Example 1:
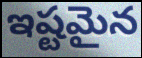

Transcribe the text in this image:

ఇష్టమైన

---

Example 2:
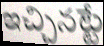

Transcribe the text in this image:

ఇచ్చినట్టే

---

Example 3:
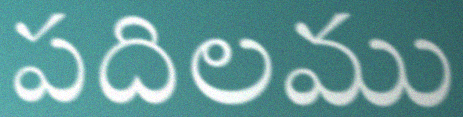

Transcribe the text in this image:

పదిలము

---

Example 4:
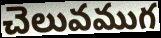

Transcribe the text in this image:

చెలువముగ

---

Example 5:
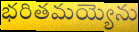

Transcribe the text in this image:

భరితమయ్యెను